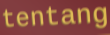
tentang